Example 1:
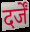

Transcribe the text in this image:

दर्जें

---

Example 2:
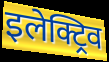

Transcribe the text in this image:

इलेक्ट्रिव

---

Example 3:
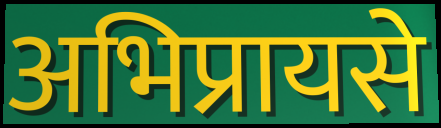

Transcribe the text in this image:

अभिप्रायसे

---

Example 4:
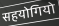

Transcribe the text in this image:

सहयोगियो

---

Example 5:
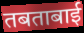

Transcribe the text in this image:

तबताबाई